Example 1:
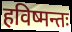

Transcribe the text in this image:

हविष्मन्तः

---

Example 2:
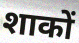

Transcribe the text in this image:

शाकों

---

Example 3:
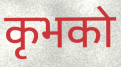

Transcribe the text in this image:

कृभको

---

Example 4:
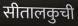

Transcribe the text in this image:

सीतालकुची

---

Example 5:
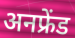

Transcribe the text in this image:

अनफ्रेंड